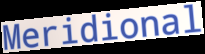
Meridional